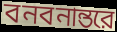
বনবনান্তরে